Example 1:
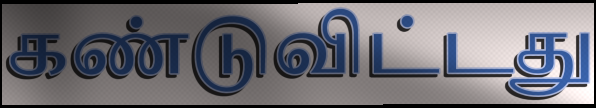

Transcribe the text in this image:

கண்டுவிட்டது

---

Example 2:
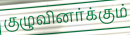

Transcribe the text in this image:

குழுவினர்க்கும்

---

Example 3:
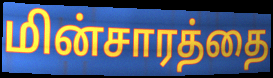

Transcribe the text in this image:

மின்சாரத்தை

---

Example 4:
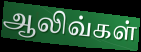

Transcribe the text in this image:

ஆலிவ்கள்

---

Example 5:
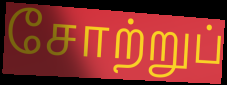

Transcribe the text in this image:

சோற்றுப்